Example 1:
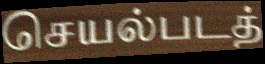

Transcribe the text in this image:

செயல்படத்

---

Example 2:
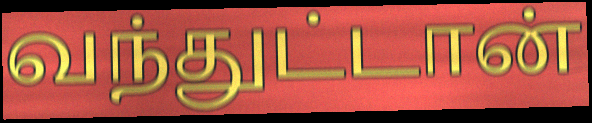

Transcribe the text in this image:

வந்துட்டான்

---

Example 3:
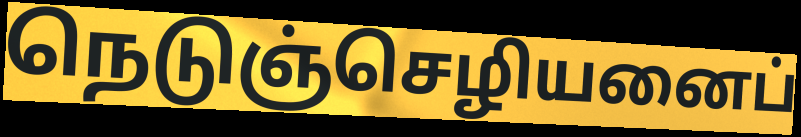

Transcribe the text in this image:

நெடுஞ்செழியனைப்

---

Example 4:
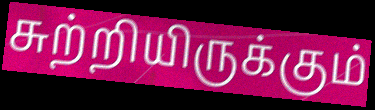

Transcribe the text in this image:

சுற்றியிருக்கும்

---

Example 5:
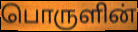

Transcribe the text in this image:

பொருளின்